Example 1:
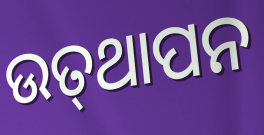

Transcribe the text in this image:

ଉତ୍‍ଥାପନ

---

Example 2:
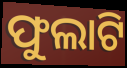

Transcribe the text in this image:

ଫୁଲାଟି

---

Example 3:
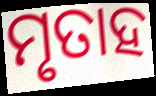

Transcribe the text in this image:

ମୃତାହ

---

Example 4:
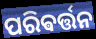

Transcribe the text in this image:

ପରିଵର୍ତ୍ତନ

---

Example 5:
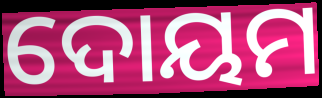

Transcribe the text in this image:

ଦୋୟମ